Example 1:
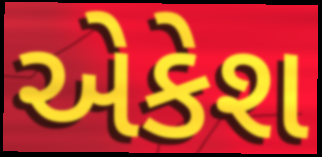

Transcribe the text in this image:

એકેશ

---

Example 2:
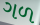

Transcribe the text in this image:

ગળ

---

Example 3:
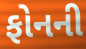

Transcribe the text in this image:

ફોનની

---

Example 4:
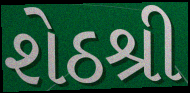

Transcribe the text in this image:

શેઠશ્રી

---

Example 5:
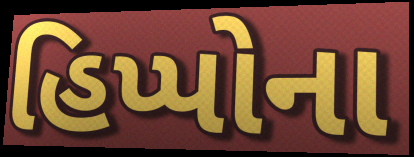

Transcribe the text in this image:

હિપ્પોના